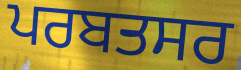
ਪਰਬਤਸਰ